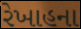
રેખાહના